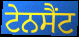
ਟੇਨਸੈਂਟ